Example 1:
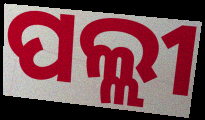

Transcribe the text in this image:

ପଲ୍ଲୀ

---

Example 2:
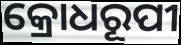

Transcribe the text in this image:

କ୍ରୋଧରୂପୀ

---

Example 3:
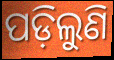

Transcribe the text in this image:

ପଡ଼ିଲୁଣି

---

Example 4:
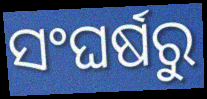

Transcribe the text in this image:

ସଂଘର୍ଷରୁ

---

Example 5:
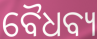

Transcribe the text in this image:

ବୈଧବ୍ୟ